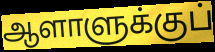
ஆளாளுக்குப்